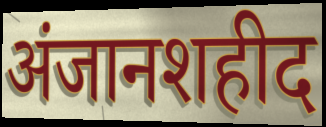
अंजानशहीद